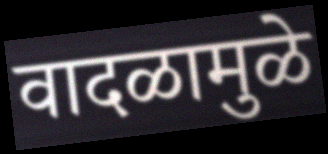
वादळामुळे